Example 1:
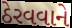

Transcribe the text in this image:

ઠેરવવાને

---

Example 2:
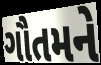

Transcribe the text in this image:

ગૌતમને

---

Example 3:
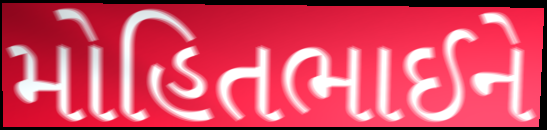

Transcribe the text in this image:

મોહિતભાઈને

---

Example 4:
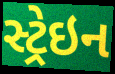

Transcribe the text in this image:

સ્ટ્રેઇન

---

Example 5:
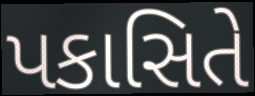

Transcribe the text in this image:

પકાસિતે